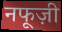
नफूज़ी